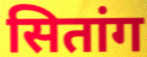
सितांग